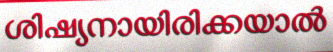
ശിഷ്യനായിരിക്കയാൽ